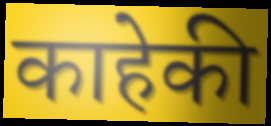
काहेकी